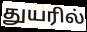
துயரில்